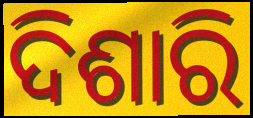
ଦିଶାରି